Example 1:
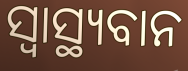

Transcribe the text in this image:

ସ୍ୱାସ୍ଥ୍ୟବାନ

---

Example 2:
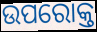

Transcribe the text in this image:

ଉପରୋକ୍ତ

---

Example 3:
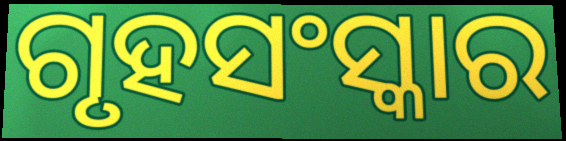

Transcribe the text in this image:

ଗୃହସଂସ୍କାର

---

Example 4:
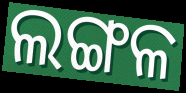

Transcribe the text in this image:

ଲଙ୍ଗଳ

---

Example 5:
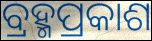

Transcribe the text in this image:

ବ୍ରହ୍ମପ୍ରକାଶ